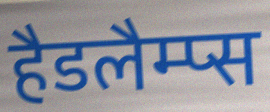
हैडलैम्प्स